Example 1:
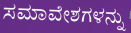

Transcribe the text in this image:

ಸಮಾವೇಶಗಳನ್ನು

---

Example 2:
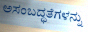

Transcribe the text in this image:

ಅಸಂಬದ್ಧತೆಗಳನ್ನು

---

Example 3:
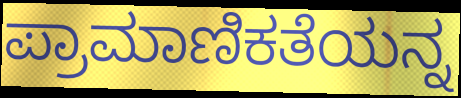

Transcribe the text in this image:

ಪ್ರಾಮಾಣಿಕತೆಯನ್ನ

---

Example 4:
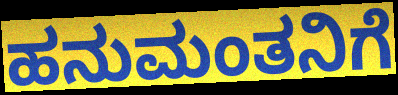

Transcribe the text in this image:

ಹನುಮಂತನಿಗೆ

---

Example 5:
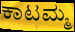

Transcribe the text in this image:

ಕಾಟಮ್ಮ